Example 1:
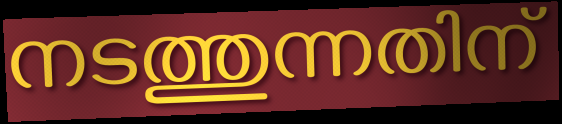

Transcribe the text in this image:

നടത്തുന്നതിന്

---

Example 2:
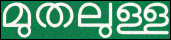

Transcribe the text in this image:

മുതലുള്ള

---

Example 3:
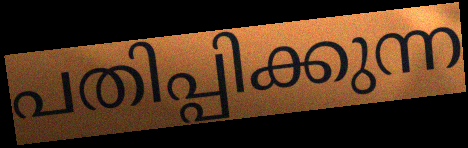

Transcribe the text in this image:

പതിപ്പിക്കുന്ന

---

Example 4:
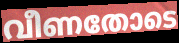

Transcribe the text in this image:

വീണതോടെ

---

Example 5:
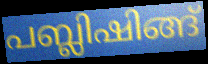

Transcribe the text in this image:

പബ്ലിഷിങ്ങ്